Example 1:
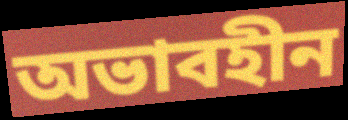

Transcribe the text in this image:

অভাবহীন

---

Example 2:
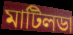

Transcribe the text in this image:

মাটিলডা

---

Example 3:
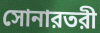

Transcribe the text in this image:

সোনারতরী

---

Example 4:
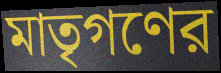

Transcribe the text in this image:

মাতৃগণের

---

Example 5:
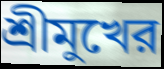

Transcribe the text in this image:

শ্রীমুখের